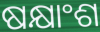
ଷକ୍ଷାଂଶ